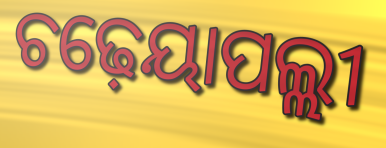
ଚଢ଼େୟାପଲ୍ଲୀ